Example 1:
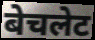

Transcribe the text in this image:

बेचलेट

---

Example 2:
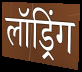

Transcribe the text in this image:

लॉड्रिंग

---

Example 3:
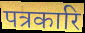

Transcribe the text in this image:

पत्रकारि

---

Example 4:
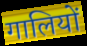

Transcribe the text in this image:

गालियों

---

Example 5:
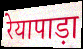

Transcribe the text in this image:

रेयापाड़ा